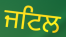
ਜਟਿਲ